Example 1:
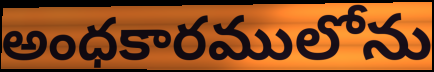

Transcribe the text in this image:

అంధకారములోను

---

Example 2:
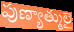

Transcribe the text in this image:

పుణ్యాత్ములై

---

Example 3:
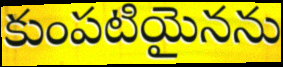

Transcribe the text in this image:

కుంపటియైనను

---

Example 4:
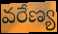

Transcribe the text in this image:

వరేణ్య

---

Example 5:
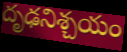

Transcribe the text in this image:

దృఢనిశ్చయం